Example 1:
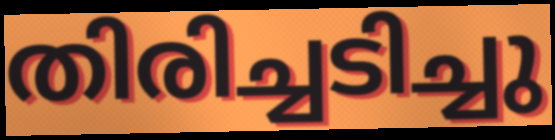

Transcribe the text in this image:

തിരിച്ചടിച്ചു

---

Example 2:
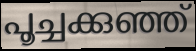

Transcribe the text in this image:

പൂച്ചക്കുഞ്ഞ്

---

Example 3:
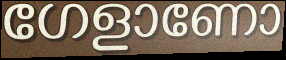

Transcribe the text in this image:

ഗേളാണോ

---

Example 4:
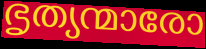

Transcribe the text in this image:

ഭൃത്യന്മാരോ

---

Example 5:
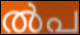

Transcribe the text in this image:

ൽപ